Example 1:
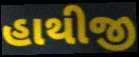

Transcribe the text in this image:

હાથીજી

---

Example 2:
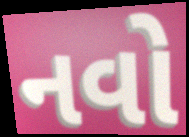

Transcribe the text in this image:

નવો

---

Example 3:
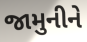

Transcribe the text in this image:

જામુનીને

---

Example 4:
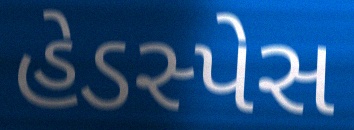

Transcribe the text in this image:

હેડસ્પેસ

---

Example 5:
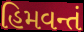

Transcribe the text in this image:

હિમવન્તં